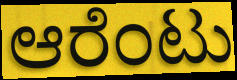
ಆರೆಂಟು